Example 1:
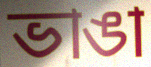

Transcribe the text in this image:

ভাঙা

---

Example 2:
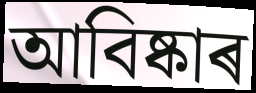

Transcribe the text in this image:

আবিষ্কাৰ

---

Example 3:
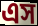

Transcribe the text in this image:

এস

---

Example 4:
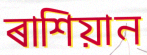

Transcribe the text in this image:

ৰাশিয়ান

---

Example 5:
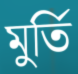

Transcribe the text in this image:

মুৰ্তি